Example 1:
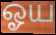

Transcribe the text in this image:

ஓய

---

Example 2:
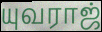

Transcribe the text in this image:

யுவராஜ்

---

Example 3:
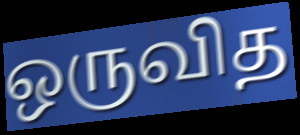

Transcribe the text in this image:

ஒருவித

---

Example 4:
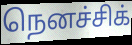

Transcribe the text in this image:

நெனச்சிக்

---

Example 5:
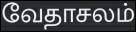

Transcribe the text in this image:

வேதாசலம்